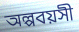
অল্পবয়সী